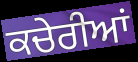
ਕਚੇਰੀਆਂ